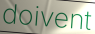
doivent